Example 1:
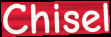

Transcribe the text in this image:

Chisel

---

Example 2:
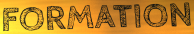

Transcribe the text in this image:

FORMATION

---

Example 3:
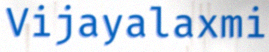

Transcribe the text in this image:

Vijayalaxmi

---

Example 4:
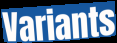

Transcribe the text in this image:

Variants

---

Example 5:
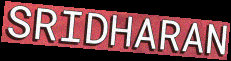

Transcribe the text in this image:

SRIDHARAN